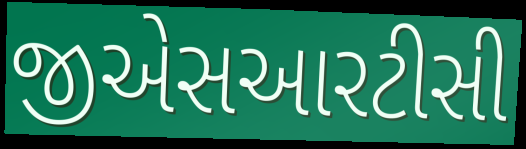
જીએસઆરટીસી